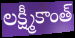
లక్ష్మీకాంత్